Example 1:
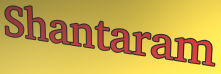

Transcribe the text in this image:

Shantaram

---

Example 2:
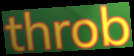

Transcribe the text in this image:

throb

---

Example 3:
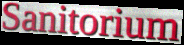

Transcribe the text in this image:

Sanitorium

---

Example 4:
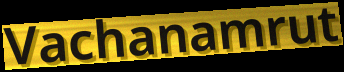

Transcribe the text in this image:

Vachanamrut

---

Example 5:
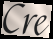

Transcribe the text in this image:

Cre